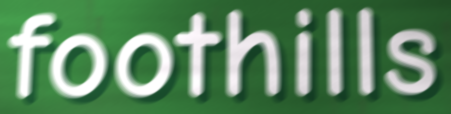
foothills